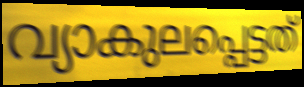
വ്യാകുലപ്പെട്ടത്